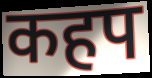
कहप